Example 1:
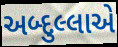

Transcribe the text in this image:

અબ્દુલ્લાએ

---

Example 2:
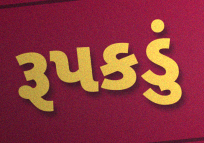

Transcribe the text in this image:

રૂપકડું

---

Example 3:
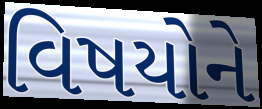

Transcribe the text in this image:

વિષયોને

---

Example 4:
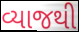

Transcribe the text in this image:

વ્યાજથી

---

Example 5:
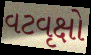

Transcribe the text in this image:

વટવૃક્ષો